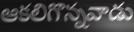
ఆకలిగొన్నవాడు